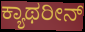
ಕ್ಯಾಥರೀನ್